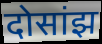
दोसांझ